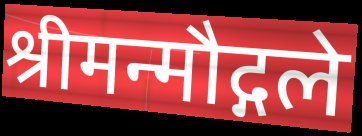
श्रीमन्मौद्गले